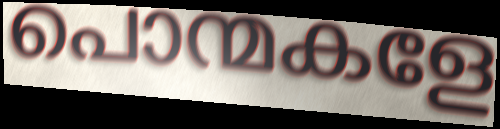
പൊന്മകളേ